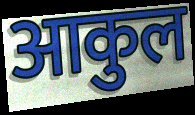
आकुल